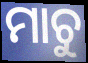
ମାଚୁ